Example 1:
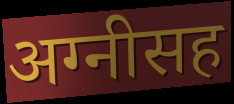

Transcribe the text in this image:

अग्नीसह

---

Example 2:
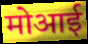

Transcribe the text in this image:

मोआई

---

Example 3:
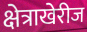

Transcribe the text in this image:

क्षेत्राखेरीज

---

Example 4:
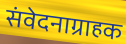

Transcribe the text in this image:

संवेदनाग्राहक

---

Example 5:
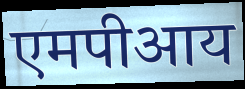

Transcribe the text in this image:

एमपीआय